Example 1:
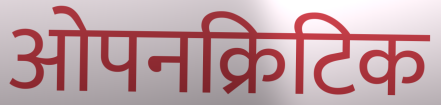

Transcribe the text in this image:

ओपनक्रिटिक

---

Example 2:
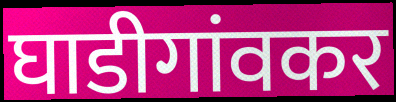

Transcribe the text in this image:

घाडीगांवकर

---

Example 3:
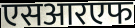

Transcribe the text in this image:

एसआरएफ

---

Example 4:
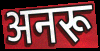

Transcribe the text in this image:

अनरू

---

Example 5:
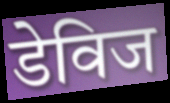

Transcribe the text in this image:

डेविज